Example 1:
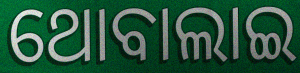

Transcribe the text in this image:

ଥୋବାଲାଇ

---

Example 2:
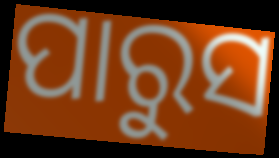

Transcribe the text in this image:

ପାରୁସ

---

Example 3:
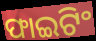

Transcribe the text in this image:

ଫାଇଟିଂ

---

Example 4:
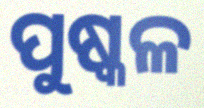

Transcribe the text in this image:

ପୁଷ୍କଳ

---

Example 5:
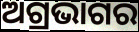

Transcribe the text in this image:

ଅଗ୍ରଭାଗର